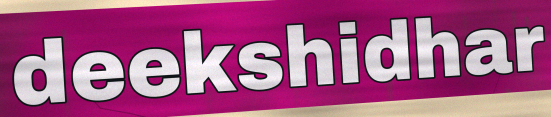
deekshidhar